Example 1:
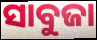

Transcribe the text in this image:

ସାବୁଜା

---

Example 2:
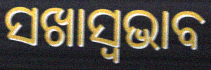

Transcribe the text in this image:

ସଖାସ୍ୱଭାବ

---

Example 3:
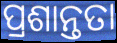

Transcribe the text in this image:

ପ୍ରଶାନ୍ତତା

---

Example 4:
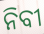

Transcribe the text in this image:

ନିବୀ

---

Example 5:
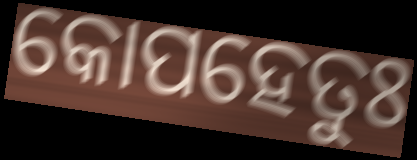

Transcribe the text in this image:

କୋପହେତୁଃ